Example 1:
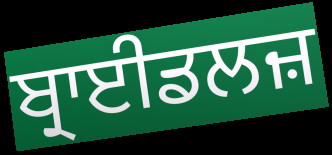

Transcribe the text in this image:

ਬ੍ਰਾਈਡਲਜ਼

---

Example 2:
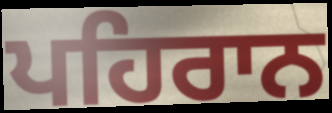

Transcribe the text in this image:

ਪਹਿਰਾਨ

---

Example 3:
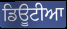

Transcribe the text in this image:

ਡਿਊਟੀਆ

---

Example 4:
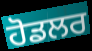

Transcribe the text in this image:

ਹੋਡਲਰ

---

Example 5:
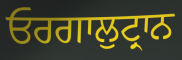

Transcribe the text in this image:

ਓਰਗਾਲੁਟ੍ਰਾਨ